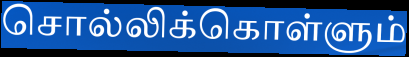
சொல்லிக்கொள்ளும்